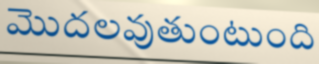
మొదలవుతుంటుంది